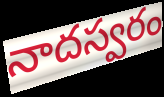
నాదస్వరం